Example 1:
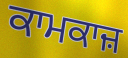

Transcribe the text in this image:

ਕਾਮਕਾਜ਼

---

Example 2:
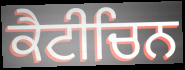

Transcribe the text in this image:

ਕੈਟੀਚਿਨ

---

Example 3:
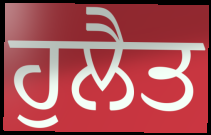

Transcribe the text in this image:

ਹੁਲੈਤ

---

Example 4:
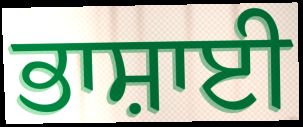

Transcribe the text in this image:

ਭਾਸ਼ਾਈ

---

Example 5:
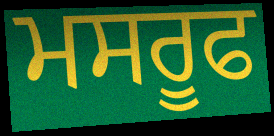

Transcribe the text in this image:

ਮਸਰੂਫ